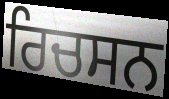
ਰਿਚਸਨ